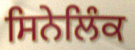
ਸਿਨੇਲਿੰਕ